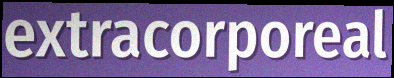
extracorporeal